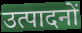
उत्पादनों